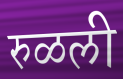
रुळली